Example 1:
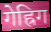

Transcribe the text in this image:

गेह्रिग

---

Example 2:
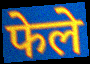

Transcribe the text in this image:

फेले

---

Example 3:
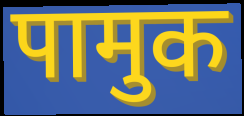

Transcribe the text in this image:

पामुक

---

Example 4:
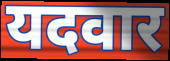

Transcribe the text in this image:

यदवार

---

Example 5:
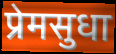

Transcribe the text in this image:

प्रेमसुधा